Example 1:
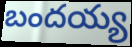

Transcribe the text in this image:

బందయ్య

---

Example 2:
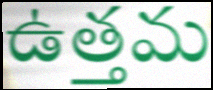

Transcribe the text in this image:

ఉత్తమ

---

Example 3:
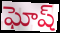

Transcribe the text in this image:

ఘోష్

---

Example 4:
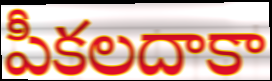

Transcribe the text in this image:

పీకలదాకా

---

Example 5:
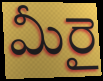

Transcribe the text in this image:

మీరై